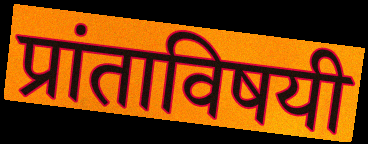
प्रांताविषयी